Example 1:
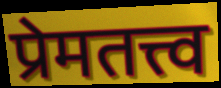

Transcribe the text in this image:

प्रेमतत्त्व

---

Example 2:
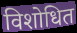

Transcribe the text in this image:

विशोधित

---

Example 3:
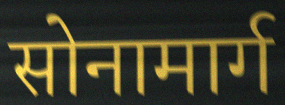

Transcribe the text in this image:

सोनामार्ग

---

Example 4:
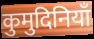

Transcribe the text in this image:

कुमुदिनियाँ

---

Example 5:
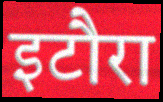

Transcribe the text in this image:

इटौरा